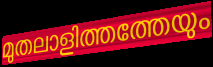
മുതലാളിത്തത്തേയും